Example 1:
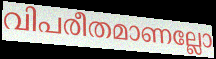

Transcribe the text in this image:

വിപരീതമാണല്ലോ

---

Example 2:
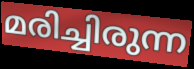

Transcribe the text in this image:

മരിച്ചിരുന്ന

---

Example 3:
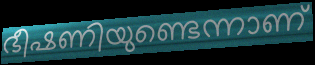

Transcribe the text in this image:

ഭീഷണിയുണ്ടെന്നാണ്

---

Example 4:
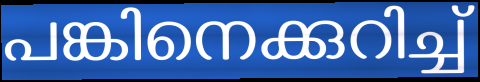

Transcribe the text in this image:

പങ്കിനെക്കുറിച്ച്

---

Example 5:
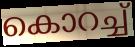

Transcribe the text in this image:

കൊറച്ച്